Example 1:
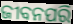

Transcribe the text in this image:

ଜୀବନପରି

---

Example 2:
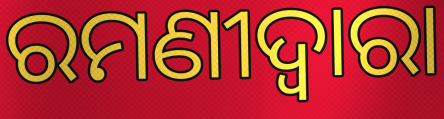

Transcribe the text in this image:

ରମଣୀଦ୍ୱାରା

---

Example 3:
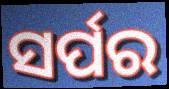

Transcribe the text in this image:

ସର୍ପର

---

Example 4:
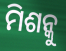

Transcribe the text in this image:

ମିଶନ୍କୁ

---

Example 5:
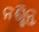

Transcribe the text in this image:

ନଶ୍ଚିନ୍ତ